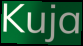
Kuja